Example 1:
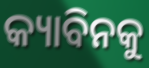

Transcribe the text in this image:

କ୍ୟାବିନକୁ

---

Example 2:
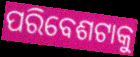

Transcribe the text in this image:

ପରିବେଶଟାକୁ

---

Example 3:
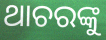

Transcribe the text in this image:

ଥାଚରଙ୍କୁ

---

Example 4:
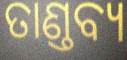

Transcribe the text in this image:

ତାଣ୍ଡବ୍ୟ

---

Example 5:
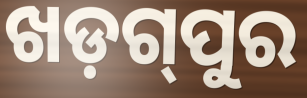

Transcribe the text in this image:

ଖଡ଼ଗ୍‌ପୁର